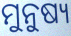
ମୁନୁଷ୍ୟ